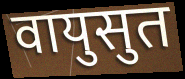
वायुसुत